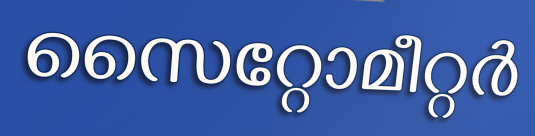
സൈറ്റോമീറ്റർ